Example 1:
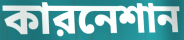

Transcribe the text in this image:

কারনেশান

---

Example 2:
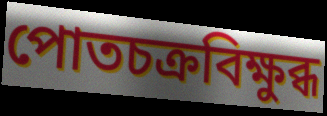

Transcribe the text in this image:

পোতচক্রবিক্ষুব্ধ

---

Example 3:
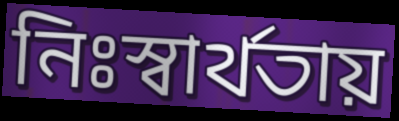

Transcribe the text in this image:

নিঃস্বার্থতায়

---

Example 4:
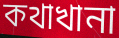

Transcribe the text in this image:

কথাখানা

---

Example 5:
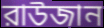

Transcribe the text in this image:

রাউজান